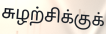
சுழற்சிக்குக்